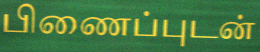
பிணைப்புடன்